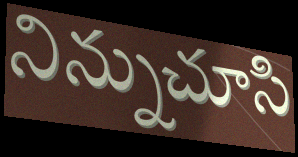
నిన్నుచూసి